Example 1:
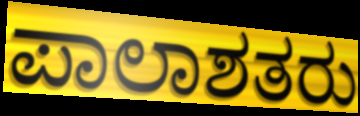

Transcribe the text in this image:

ಪಾಲಾಶತರು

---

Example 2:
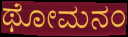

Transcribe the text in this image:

ಥೋಮನಂ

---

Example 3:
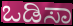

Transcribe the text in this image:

ಒಡಿಸಾ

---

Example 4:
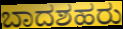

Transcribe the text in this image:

ಬಾದಶಹರು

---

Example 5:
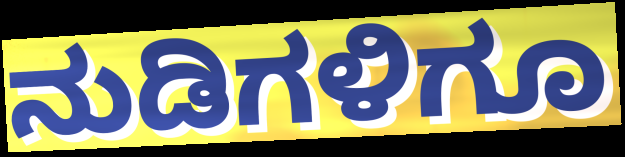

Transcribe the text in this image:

ನುಡಿಗಳಿಗೂ